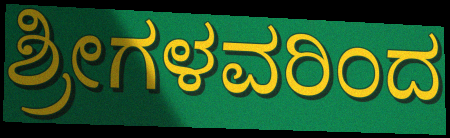
ಶ್ರೀಗಳವರಿಂದ